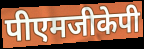
पीएमजीकेपी